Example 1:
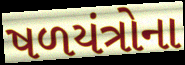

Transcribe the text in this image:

ષળયંત્રોના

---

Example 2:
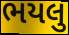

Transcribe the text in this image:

ભયલુ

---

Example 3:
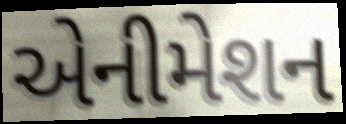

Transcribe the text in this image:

એનીમેશન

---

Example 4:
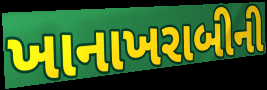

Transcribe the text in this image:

ખાનાખરાબીની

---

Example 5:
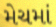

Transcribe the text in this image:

મેચમાં